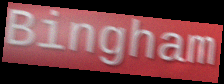
Bingham